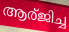
ആര്ജിച്ച